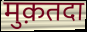
मुक़तदा